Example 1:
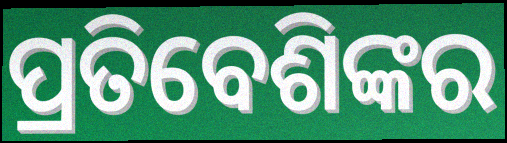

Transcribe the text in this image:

ପ୍ରତିବେଶିଙ୍କର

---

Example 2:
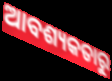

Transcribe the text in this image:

ଆବଶ୍ୟକତାରୁ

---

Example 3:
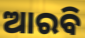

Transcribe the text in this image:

ଆରବି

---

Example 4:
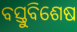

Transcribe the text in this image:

ବସ୍ତୁବିଶେଷ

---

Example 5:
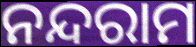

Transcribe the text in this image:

ନନ୍ଦରାମ